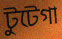
টুটেগা